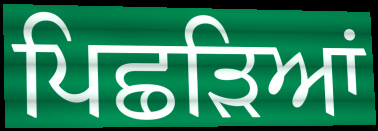
ਪਿਛੜਿਆਂ